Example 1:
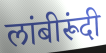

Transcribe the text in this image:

लांबीरूंदी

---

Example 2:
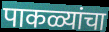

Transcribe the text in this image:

पाकळ्यांचा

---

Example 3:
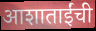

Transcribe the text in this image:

आशाताईंची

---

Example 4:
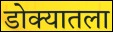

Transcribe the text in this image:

डोक्‍यातला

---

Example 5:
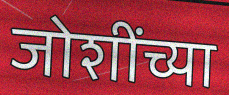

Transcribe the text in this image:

जोशींच्या